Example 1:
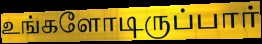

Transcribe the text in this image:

உங்களோடிருப்பார்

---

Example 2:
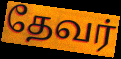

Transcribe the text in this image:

தேவர்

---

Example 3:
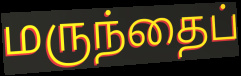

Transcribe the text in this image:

மருந்தைப்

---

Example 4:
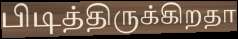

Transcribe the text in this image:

பிடித்திருக்கிறதா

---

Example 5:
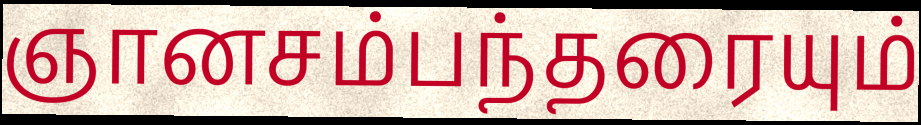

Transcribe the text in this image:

ஞானசம்பந்தரையும்